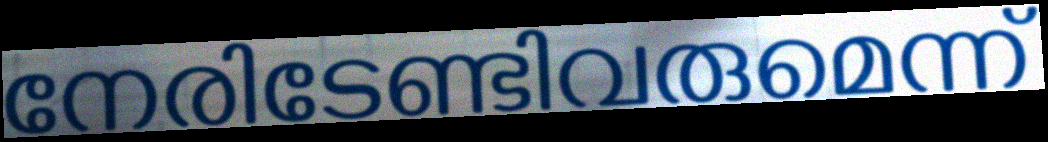
നേരിടേണ്ടിവരുമെന്ന്